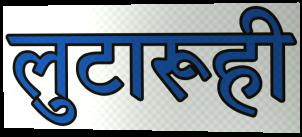
लुटारूही